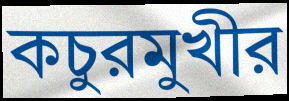
কচুরমুখীর